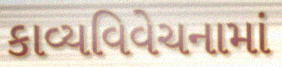
કાવ્યવિવેચનામાં